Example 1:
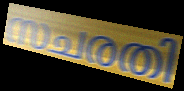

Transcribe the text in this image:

സചരതി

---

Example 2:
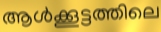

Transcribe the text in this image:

ആൾക്കൂട്ടത്തിലെ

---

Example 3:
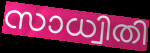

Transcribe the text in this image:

സാധ്വിതി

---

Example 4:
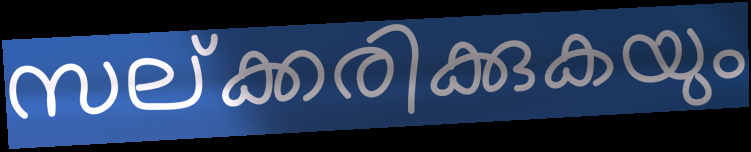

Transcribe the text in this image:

സല്ക്കരിക്കുകയും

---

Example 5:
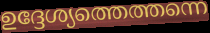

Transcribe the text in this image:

ഉദ്ദേശ്യത്തെത്തന്നെ